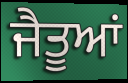
ਜੈਤੂਆਂ